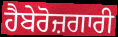
ਹੈਬੇਰੋਜ਼ਗਾਰੀ